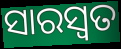
ସାରସ୍ବତ